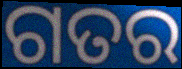
ଗତର